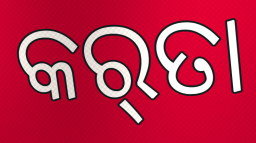
କର୍‌ତା